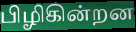
பிழிகின்றன